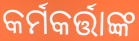
କର୍ମକର୍ତ୍ତାଙ୍କ